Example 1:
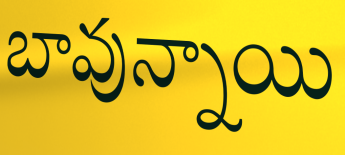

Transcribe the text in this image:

బావున్నాయి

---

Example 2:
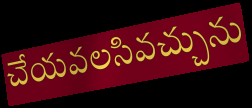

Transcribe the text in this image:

చేయవలసివచ్చును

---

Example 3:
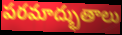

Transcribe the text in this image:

పరమాద్భుతాలు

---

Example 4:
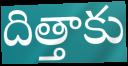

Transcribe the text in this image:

దిత్తాకు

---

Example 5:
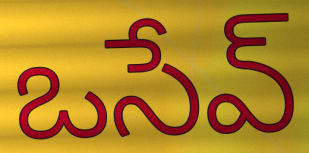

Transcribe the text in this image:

ఒసేవ్